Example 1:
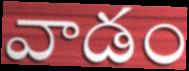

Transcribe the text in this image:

వాడం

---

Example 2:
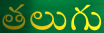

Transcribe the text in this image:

తలుగు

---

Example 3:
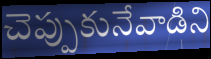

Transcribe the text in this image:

చెప్పుకునేవాడిని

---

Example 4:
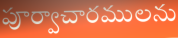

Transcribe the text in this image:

పూర్వాచారములను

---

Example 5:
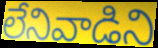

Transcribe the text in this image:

లేనివాడిని